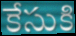
కేసుకి